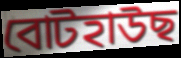
বোটহাউছ